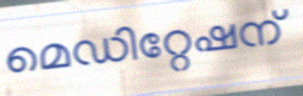
മെഡിറ്റേഷന്